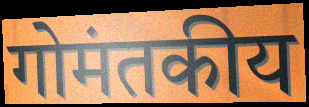
गोमंतकीय